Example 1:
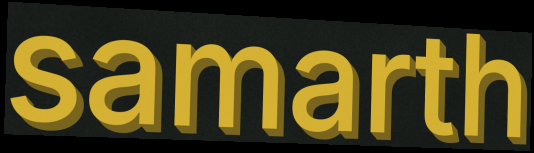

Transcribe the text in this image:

samarth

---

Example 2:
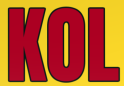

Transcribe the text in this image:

KOL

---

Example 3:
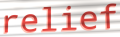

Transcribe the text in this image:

relief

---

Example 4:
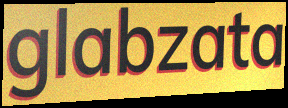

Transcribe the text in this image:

glabzata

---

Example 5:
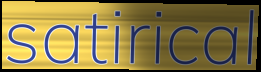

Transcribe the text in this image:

satirical